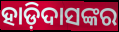
ହାଡ଼ିଦାସଙ୍କର